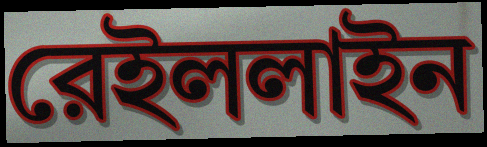
রেইললাইন